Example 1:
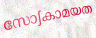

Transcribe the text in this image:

സോഽകാമയത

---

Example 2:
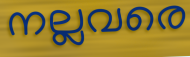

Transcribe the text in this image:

നല്ലവരെ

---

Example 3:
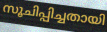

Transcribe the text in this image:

സൂചിപ്പിച്ചതായി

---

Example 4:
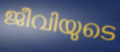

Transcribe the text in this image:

ജീവിയുടെ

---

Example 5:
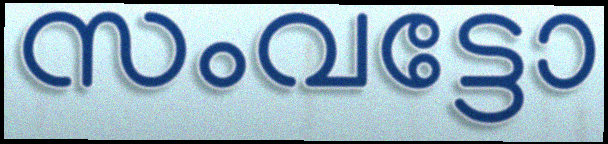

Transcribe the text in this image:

സംവട്ടോ